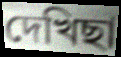
দেখিছা